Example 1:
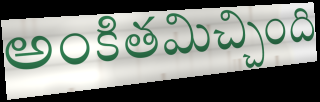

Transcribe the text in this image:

అంకితమిచ్చింది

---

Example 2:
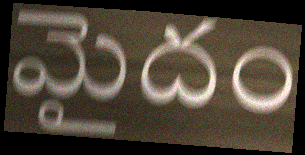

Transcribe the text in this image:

మైదం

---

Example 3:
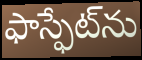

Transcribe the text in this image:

ఫాస్ఫేట్‌ను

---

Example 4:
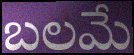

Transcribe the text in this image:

బలమే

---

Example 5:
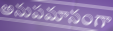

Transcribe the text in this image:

అనుపమానంగా